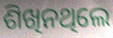
ଶିଖିନଥିଲେ